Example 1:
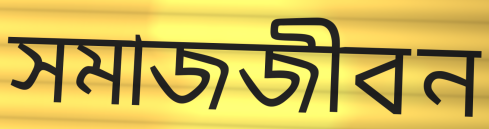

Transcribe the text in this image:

সমাজজীবন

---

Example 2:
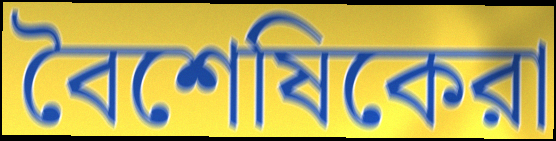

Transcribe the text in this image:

বৈশেষিকেরা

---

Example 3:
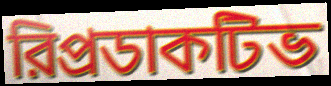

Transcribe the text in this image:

রিপ্রডাকটিভ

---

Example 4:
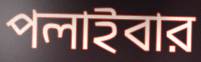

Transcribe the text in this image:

পলাইবার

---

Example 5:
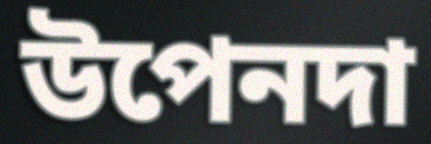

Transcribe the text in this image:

উপেনদা